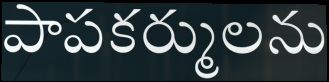
పాపకర్ములను